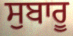
ਸੁਬਾਰੂ